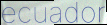
ecuador